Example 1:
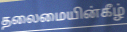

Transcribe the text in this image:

தலைமையின்கீழ்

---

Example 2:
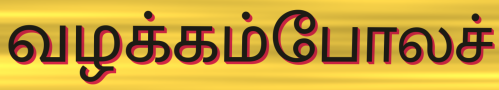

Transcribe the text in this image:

வழக்கம்போலச்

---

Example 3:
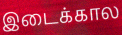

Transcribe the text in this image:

இடைக்கால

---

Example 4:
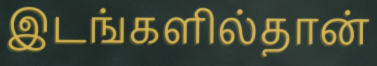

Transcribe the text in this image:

இடங்களில்தான்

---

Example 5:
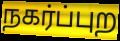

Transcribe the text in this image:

நகர்ப்புற